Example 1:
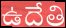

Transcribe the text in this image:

ఉదేతి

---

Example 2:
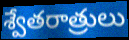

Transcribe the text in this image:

శ్వేతరాత్రులు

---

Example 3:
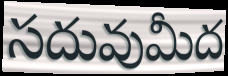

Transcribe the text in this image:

సదువుమీద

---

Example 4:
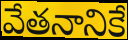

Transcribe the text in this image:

వేతనానికే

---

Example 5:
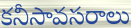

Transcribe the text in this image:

కనీసావసరాలు